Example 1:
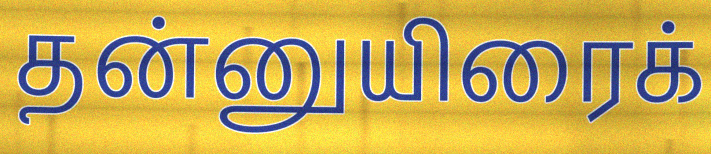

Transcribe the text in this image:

தன்னுயிரைக்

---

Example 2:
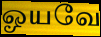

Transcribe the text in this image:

ஓயவே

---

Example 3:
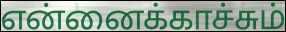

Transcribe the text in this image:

என்னைக்காச்சும்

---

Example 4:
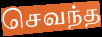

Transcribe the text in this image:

செவந்த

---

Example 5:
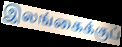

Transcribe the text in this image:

இலங்கைக்குப்